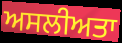
ਅਸਲੀਅਤਾ